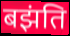
बझंति